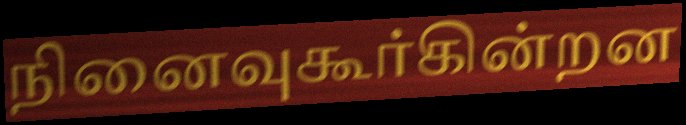
நினைவுகூர்கின்றன